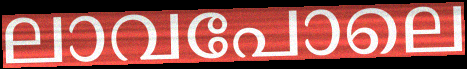
ലാവപോലെ